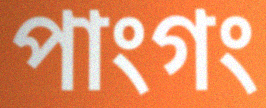
পাংগং